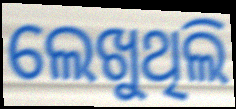
ଲେଖୁଥିଲି